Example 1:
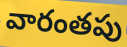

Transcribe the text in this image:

వారంతపు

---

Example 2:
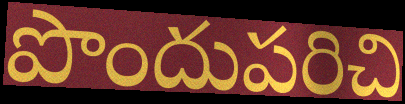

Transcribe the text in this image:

పొందుపరిచి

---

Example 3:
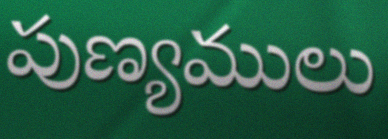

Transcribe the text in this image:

పుణ్యములు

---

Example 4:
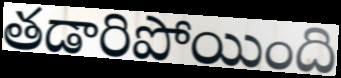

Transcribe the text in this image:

తడారిపోయింది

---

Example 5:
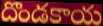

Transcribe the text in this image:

దొండకాయ